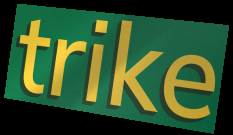
trike